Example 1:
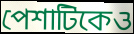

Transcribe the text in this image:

পেশাটিকেও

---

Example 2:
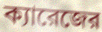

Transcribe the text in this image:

ক্যারেজের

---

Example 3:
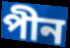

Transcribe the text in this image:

পীন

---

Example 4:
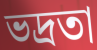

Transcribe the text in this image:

ভদ্রতা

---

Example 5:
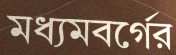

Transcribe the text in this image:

মধ্যমবর্গের